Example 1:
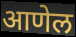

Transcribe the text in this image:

आणेल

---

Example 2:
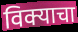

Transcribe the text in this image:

विक्याचा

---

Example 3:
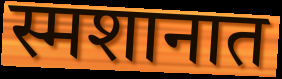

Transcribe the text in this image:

स्मशानात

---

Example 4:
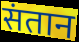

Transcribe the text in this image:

संतान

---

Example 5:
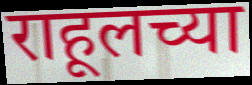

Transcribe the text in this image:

राहूलच्या